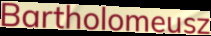
Bartholomeusz